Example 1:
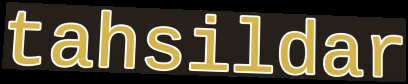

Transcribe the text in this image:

tahsildar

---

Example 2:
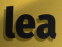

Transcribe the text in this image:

lea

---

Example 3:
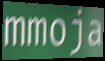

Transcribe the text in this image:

mmoja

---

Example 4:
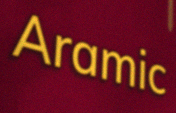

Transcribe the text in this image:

Aramic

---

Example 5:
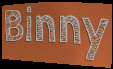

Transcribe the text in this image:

Binny